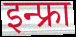
इन्फ्रा